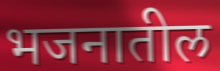
भजनातील